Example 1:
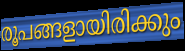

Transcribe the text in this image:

രൂപങ്ങളായിരിക്കും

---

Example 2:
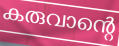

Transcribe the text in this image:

കരുവാന്റെ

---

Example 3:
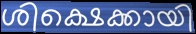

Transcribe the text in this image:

ശിക്ഷെക്കായി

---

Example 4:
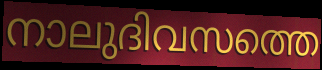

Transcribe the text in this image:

നാലുദിവസത്തെ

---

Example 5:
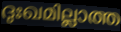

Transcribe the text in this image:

ദുഃഖമില്ലാത്ത